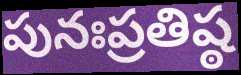
పునఃప్రతిష్ఠ